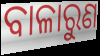
ବାଳାରୁଣ